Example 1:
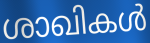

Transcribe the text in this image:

ശാഖികൾ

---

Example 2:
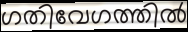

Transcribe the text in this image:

ഗതിവേഗത്തിൽ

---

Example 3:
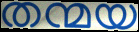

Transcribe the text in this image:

തന്മയ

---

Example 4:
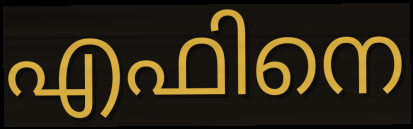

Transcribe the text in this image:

എഫിനെ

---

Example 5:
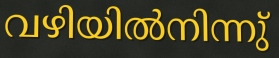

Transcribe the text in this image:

വഴിയിൽനിന്നു്